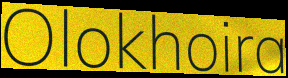
Olokhoira